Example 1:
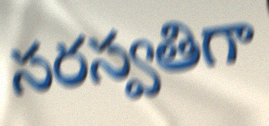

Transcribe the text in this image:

సరస్వతిగా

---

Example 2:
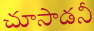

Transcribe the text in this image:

చూసాడనీ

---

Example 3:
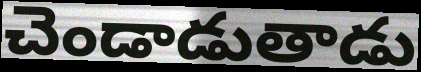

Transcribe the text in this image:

చెండాడుతాడు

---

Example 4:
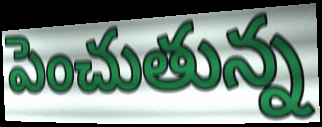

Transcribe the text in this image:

పెంచుతున్న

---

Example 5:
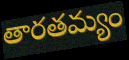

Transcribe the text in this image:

తారతమ్యం